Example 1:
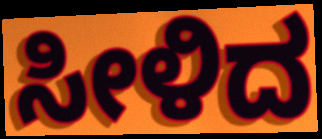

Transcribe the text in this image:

ಸೀಳಿದ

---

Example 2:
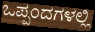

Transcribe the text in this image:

ಒಪ್ಪಂದಗಳಲ್ಲಿ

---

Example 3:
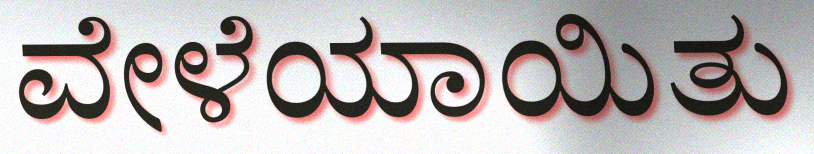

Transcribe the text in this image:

ವೇಳೆಯಾಯಿತು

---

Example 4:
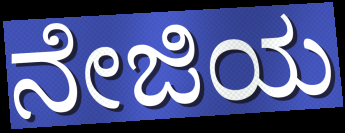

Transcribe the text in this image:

ನೇಜಿಯ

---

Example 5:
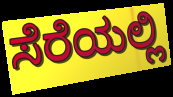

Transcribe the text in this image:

ಸೆರೆಯಲ್ಲಿ